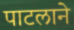
पाटलाने